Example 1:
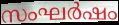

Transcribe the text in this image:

സംഘർഷം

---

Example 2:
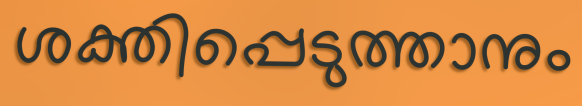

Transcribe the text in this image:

ശക്തിപ്പെടുത്താനും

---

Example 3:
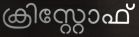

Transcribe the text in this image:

ക്രിസ്റ്റോഫ്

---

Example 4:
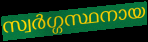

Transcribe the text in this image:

സ്വർഗ്ഗസ്ഥനായ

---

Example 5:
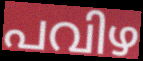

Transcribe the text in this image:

പവിഴ